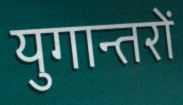
युगान्तरों